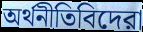
অর্থনীতিবিদেরা